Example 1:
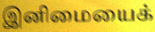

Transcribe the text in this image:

இனிமையைக்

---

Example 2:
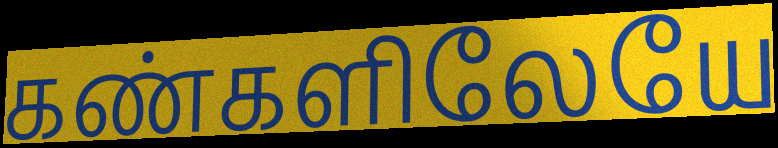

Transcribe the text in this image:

கண்களிலேயே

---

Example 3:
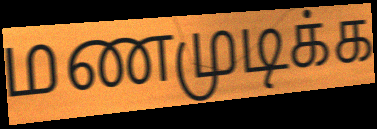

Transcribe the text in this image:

மணமுடிக்க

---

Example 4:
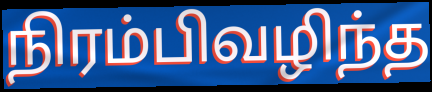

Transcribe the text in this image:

நிரம்பிவழிந்த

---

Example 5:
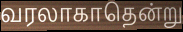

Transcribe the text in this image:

வரலாகாதென்று